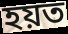
হয়ত